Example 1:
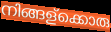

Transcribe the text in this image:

നിങ്ങള്ക്കൊരു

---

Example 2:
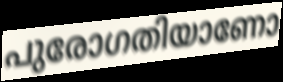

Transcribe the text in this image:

പുരോഗതിയാണോ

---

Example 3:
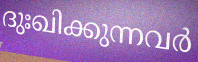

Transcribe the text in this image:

ദുഃഖിക്കുന്നവർ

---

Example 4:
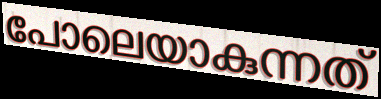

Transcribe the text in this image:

പോലെയാകുന്നത്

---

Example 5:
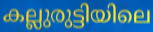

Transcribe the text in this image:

കല്ലുരുട്ടിയിലെ